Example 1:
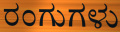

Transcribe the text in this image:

ರಂಗುಗಳು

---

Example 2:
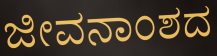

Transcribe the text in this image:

ಜೀವನಾಂಶದ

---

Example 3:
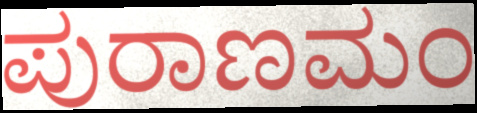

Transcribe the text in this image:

ಪುರಾಣಮಂ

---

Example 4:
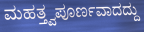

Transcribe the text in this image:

ಮಹತ್ತ್ವಪೂರ್ಣವಾದದ್ದು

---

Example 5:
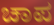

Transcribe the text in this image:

ಚಾಪ